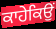
ਕਾਹੇਕਿਉਂ